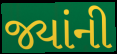
જ્યાંની